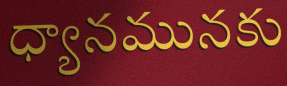
ధ్యానమునకు